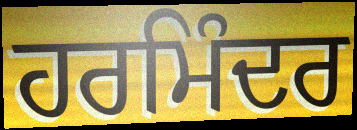
ਹਰਮਿੰਦਰ